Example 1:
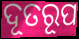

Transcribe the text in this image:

ଦୂତରୂପ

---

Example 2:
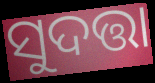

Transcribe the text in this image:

ସୁଦତ୍ତା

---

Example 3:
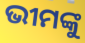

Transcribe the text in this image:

ଭୀମଙ୍କୁ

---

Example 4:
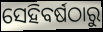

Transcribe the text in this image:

ସେହିବର୍ଷଠାରୁ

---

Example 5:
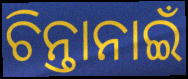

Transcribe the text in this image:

ଚିନ୍ତାନାଇଁ